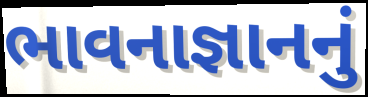
ભાવનાજ્ઞાનનું